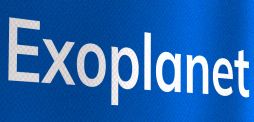
Exoplanet